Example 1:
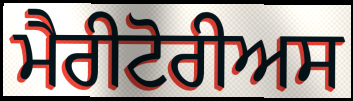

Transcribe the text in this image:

ਮੈਰੀਟੋਰੀਅਸ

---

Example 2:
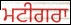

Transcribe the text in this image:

ਮਟੀਗਰਾ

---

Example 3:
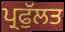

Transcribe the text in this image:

ਪ੍ਰਫੁੱਲਤ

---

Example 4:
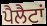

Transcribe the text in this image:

ਪੈਲੈਟਾਂ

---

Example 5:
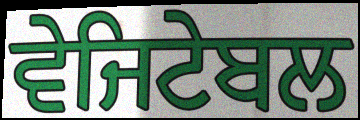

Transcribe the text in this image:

ਵੇਜਿਟੇਬਲ